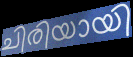
ചിരിയായി